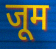
जूम